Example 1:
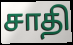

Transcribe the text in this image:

சாதி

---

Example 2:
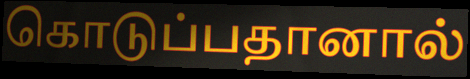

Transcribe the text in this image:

கொடுப்பதானால்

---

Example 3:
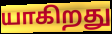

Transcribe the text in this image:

யாகிறது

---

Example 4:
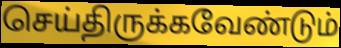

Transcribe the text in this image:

செய்திருக்கவேண்டும்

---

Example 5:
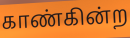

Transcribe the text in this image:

காண்கின்ற